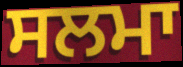
ਸਲਮਾ